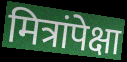
मित्रांपेक्षा